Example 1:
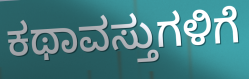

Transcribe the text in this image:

ಕಥಾವಸ್ತುಗಳಿಗೆ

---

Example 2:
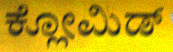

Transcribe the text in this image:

ಕ್ಲೋಮಿಡ್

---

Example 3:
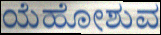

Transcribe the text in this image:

ಯೆಹೋಶುವ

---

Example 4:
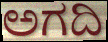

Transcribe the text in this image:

ಅಗದಿ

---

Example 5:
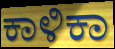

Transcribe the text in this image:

ಕಾಳಿಕಾ